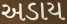
અડાય